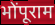
भोंपूराम